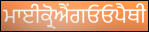
ਮਾਈਕ੍ਰੋਐਂਗਓਓਪੈਥੀ